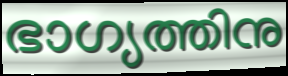
ഭാഗ്യത്തിനു